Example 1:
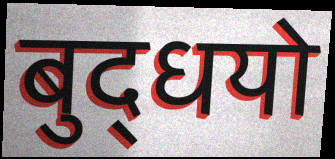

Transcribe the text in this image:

बुद्धयो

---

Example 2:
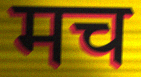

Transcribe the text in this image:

मच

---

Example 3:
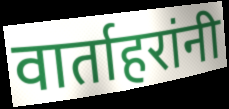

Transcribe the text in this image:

वार्ताहरांनी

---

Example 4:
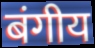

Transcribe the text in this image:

बंगीय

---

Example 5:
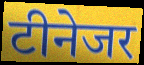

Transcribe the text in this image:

टीनेजर